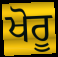
ਖੋਰੂ